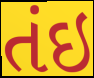
તંઇ